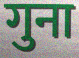
गुना